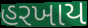
હરખાય